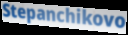
Stepanchikovo